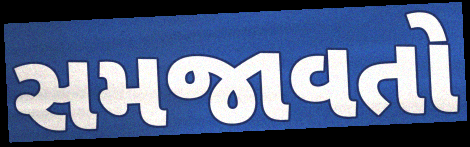
સમજાવતો